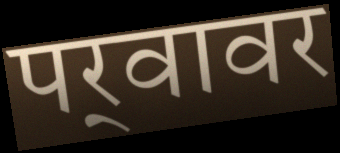
पर्वावर